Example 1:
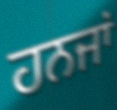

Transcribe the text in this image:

ਹਨਜਾਂ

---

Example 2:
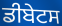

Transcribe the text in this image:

ਡੀਬੇਟਸ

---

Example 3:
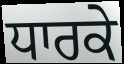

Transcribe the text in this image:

ਧਾਰਕੇ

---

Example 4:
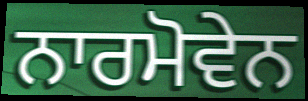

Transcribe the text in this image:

ਨਾਰਮੋਵੇਨ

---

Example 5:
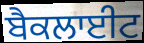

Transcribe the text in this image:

ਬੈਕਲਾਈਟ